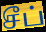
சீப்